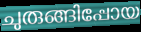
ചുരുങ്ങിപ്പോയ